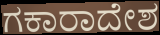
ಗಕಾರಾದೇಶ